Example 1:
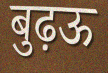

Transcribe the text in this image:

बुढ़ऊ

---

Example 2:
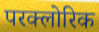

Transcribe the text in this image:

परक्लोरिक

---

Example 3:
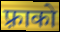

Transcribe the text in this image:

फ़्राको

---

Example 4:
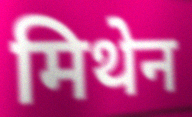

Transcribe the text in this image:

मिथेन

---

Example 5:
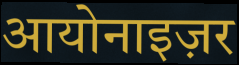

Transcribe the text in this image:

आयोनाइज़र